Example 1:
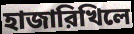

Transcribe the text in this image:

হাজারিখিলে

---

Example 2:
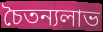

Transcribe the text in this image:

চৈতন্যলাভ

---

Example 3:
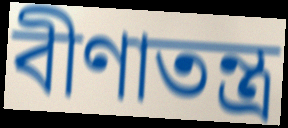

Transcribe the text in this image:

বীণাতন্ত্র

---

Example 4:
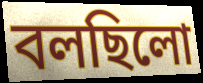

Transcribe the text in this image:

বলছিলো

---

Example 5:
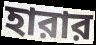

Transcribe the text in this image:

হারার